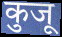
कुजू